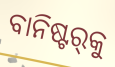
ବାନିଷ୍ଟର୍‍କୁ